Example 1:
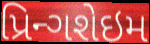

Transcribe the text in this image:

પ્રિન્ગશેઇમ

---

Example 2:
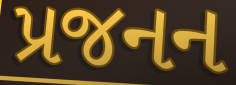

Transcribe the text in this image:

પ્રજનન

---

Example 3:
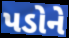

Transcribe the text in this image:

પડોને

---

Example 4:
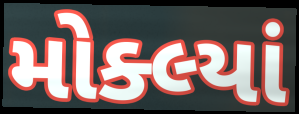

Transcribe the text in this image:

મોક્લ્યાં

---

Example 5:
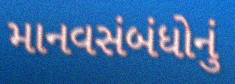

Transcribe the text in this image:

માનવસંબંધોનું